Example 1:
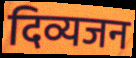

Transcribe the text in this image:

दिव्यजन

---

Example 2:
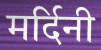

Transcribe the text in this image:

मर्दिनी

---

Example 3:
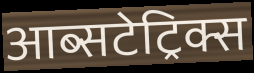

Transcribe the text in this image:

आब्सटेट्रिक्स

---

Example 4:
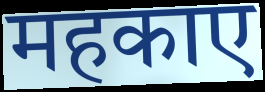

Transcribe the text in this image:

महकाए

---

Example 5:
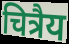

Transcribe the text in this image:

चित्रैय